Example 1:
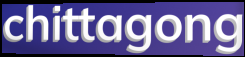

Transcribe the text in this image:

chittagong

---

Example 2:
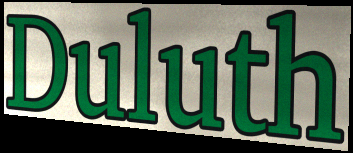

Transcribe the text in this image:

Duluth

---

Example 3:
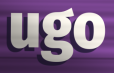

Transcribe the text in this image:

ugo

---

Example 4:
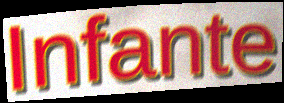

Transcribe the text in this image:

Infante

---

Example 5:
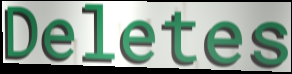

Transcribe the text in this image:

Deletes